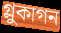
গ্লুকাগন